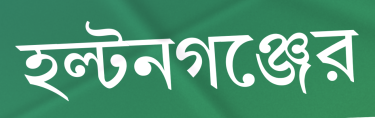
হল্টনগঞ্জের